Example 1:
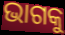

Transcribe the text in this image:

ଭାଗକୁ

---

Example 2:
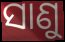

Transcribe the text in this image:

ସାଣୁ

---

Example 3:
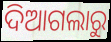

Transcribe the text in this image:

ଦିଆଗଲାରୁ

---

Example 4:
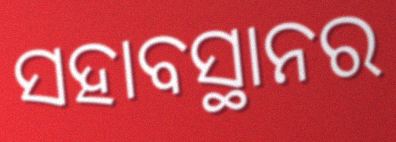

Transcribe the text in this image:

ସହାବସ୍ଥାନର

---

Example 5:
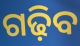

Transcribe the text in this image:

ଗଢ଼ିବ